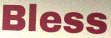
Bless